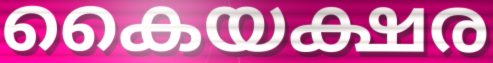
കൈയക്ഷര